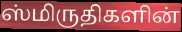
ஸ்மிருதிகளின்